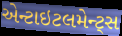
એન્ટાઇટલમેન્ટ્સ